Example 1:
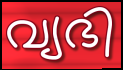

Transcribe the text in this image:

വ്യഭി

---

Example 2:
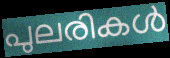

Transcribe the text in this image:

പുലരികൾ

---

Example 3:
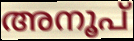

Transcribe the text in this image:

അനൂപ്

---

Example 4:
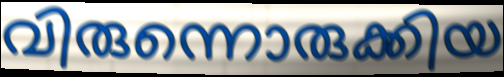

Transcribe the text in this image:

വിരുന്നൊരുക്കിയ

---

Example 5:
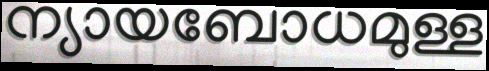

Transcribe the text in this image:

ന്യായബോധമുള്ള